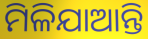
ମିଳିଯାଆନ୍ତି